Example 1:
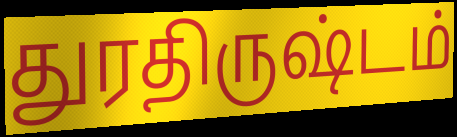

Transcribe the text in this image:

துரதிருஷ்டம்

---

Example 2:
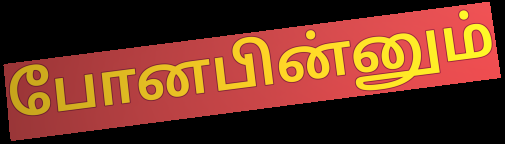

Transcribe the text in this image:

போனபின்னும்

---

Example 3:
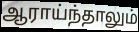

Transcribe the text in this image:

ஆராய்ந்தாலும்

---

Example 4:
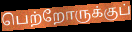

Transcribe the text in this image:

பெற்றோருக்குப்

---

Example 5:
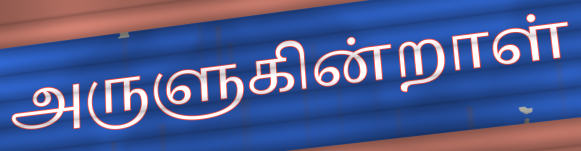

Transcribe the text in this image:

அருளுகின்றாள்